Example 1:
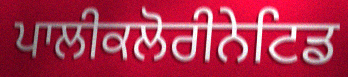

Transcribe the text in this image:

ਪਾਲੀਕਲੋਰੀਨੇਟਿਡ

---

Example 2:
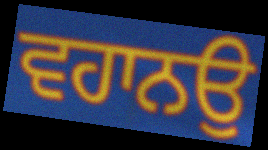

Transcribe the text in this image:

ਵਹਾਨਉ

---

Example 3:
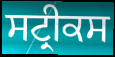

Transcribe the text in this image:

ਸਟ੍ਰੀਕਸ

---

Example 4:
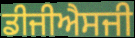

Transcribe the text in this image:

ਡੀਜੀਐਸਜੀ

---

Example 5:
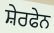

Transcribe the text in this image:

ਸ਼ੇਰਫੇਨ